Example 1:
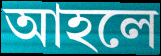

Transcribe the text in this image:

আহলে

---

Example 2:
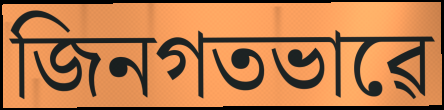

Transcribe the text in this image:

জিনগতভাৱে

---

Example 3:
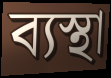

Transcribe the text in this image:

ব্যস্থা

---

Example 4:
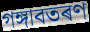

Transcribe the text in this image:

গঙ্গাবতৰণ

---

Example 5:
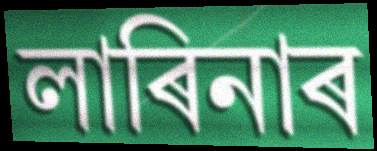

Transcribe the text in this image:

লাৰিনাৰ